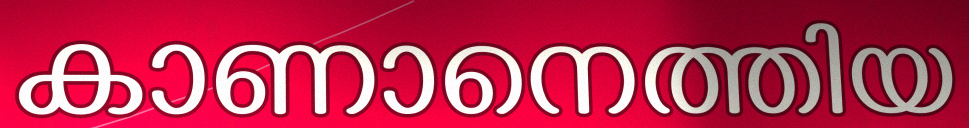
കാണാനെത്തിയ